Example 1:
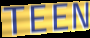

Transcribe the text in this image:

TEEN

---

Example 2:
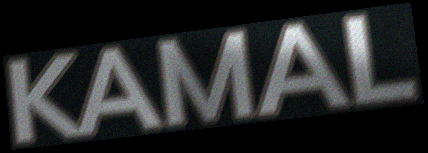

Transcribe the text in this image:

KAMAL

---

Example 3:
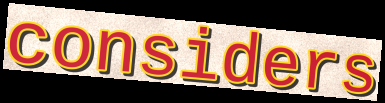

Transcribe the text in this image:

considers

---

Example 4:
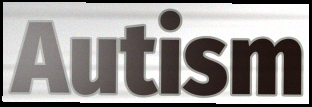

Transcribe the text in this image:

Autism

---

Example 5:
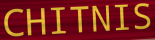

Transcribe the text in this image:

CHITNIS